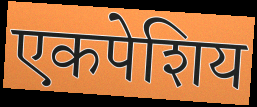
एकपेशिय